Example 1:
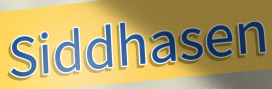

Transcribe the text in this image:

Siddhasen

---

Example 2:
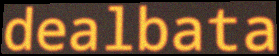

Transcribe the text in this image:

dealbata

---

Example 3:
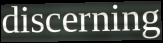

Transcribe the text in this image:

discerning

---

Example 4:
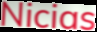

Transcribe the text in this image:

Nicias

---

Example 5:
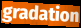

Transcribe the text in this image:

gradation